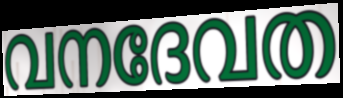
വനദേവത